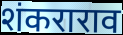
शंकराराव